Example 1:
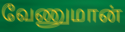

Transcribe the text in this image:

வேணுமான்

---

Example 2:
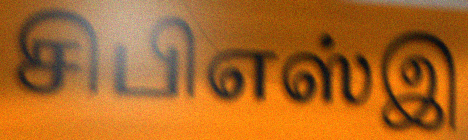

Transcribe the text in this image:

சிபிஎஸ்இ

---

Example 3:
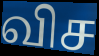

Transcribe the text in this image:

விச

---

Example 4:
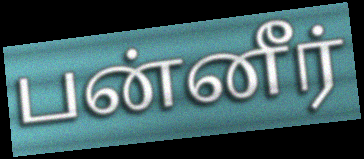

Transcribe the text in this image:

பன்னீர்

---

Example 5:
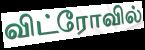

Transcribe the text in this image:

விட்ரோவில்